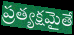
ప్రత్యక్షమైతే